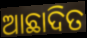
ଆଛାଦିତ